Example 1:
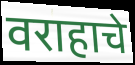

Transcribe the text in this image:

वराहाचे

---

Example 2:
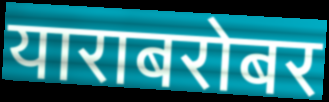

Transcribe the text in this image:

याराबरोबर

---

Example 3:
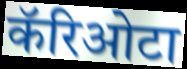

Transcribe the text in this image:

कॅरिओटा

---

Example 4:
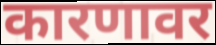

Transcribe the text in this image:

कारणावर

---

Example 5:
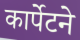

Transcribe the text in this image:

कार्पेटने